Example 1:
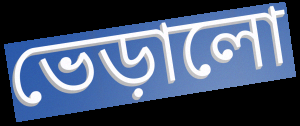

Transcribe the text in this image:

ভেড়ালো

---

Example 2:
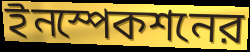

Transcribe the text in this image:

ইনস্পেকশনের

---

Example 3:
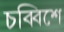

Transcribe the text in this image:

চব্বিশে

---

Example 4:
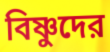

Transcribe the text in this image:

বিষ্ণুদের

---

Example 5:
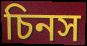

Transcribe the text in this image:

চিনস